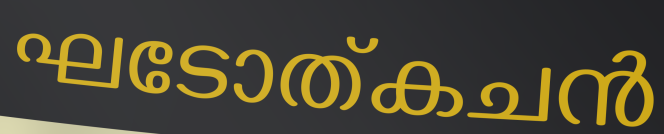
ഘടോത്കചൻ